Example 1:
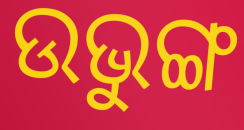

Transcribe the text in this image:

ଉଭୁଙ୍ଗ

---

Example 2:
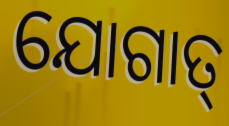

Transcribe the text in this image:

ଯୋଗାତ୍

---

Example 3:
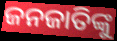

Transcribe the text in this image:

ଜନଜାତିଙ୍କୁ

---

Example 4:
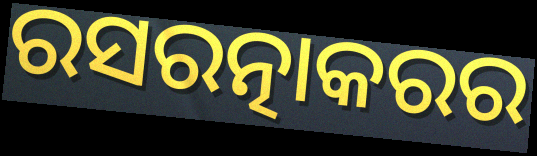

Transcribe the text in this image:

ରସରତ୍ନାକରର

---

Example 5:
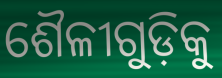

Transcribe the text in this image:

ଶୈଳୀଗୁଡ଼ିକୁ